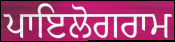
ਪਾਇਲੋਗਰਾਮ